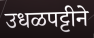
उधळपट्टीने